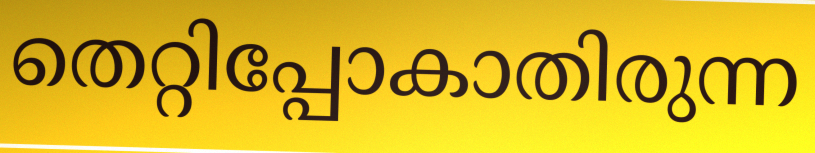
തെറ്റിപ്പോകാതിരുന്ന